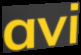
avi